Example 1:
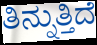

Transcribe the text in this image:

ತಿನ್ನುತ್ತಿದೆ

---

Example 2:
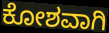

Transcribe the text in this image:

ಕೋಶವಾಗಿ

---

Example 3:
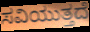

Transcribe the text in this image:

ಸವಿಯುತ್ತದೆ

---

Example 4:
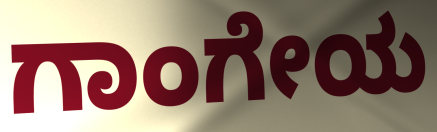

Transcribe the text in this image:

ಗಾಂಗೇಯ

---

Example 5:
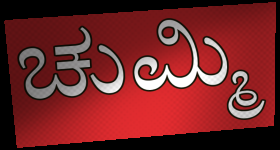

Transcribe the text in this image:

ಚುಮ್ಮಿ